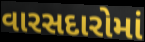
વારસદારોમાં